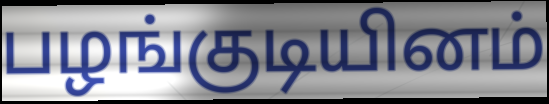
பழங்குடியினம்